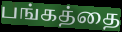
பங்கத்தை